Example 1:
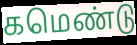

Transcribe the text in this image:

கமெண்டு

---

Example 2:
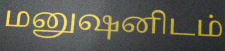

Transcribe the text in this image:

மனுஷனிடம்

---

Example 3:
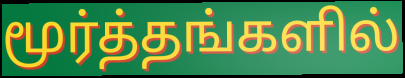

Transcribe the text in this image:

மூர்த்தங்களில்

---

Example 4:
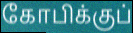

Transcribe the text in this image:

கோபிக்குப்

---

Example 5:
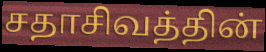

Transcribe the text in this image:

சதாசிவத்தின்